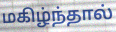
மகிழ்ந்தால்